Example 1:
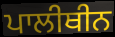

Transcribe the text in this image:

ਪਾਲੀਥੀਨ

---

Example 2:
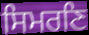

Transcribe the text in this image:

ਸਿਮਰਣਿ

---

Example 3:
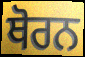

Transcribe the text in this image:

ਥੋਰਨ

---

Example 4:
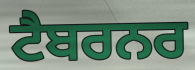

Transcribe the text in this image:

ਟੈਬਰਨਰ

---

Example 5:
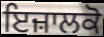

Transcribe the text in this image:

ਇਜ਼ਾਲਕੋ